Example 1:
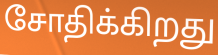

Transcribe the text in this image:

சோதிக்கிறது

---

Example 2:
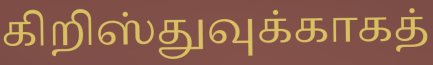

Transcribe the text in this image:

கிறிஸ்துவுக்காகத்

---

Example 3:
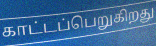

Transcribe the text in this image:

காட்டப்பெறுகிறது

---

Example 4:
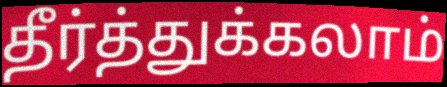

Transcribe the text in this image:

தீர்த்துக்கலாம்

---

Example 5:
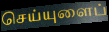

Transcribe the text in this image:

செய்யுளைப்